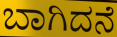
ಬಾಗಿದನೆ